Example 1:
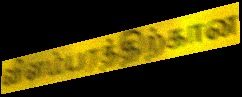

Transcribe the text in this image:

விளம்பரத்திற்கான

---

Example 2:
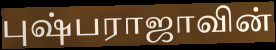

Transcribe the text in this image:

புஷ்பராஜாவின்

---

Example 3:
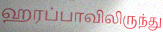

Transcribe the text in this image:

ஹரப்பாவிலிருந்து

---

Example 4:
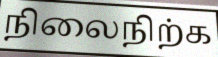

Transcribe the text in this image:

நிலைநிற்க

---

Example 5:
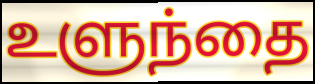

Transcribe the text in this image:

உளுந்தை